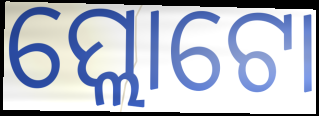
ପ୍ଲୋଟୋ